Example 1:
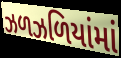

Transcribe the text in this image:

ઝળઝળિયાંમાં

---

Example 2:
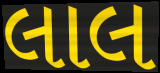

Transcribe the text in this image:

લાલ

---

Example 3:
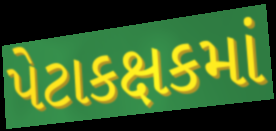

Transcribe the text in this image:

પેટાકક્ષકમાં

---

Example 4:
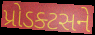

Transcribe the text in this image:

પ્રોડક્ટસને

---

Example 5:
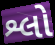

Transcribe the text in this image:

શ્લો